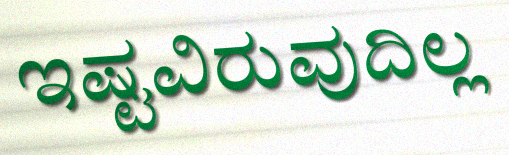
ಇಷ್ಟವಿರುವುದಿಲ್ಲ